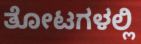
ತೋಟಗಳಲ್ಲಿ